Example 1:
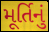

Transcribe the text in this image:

મૂર્તિનું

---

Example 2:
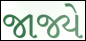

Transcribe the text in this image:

જાજ્યે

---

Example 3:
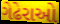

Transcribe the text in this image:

ગેઢેરાઓ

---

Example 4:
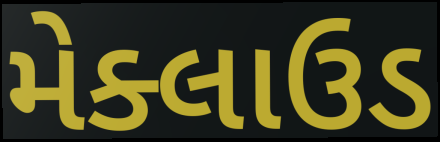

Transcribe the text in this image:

મેક્લાઉડ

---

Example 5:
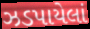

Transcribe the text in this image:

ઝડપાયેલાં